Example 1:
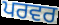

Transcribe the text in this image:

ਪਰਵਰ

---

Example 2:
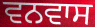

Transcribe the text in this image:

ਵਨਵਾਸ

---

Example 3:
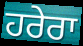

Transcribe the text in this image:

ਹਰੇਰਾ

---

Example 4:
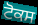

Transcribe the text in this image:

ਟੋਕਸ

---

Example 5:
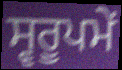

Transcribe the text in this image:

ਸ੍ਵਰੂਪਮੇਂ